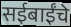
सईबाईंचे